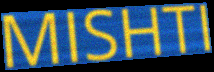
MISHTI